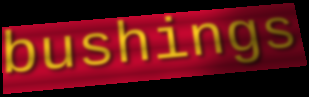
bushings